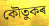
কৌতুকৰ